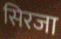
सिरजा